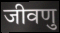
जीवणु